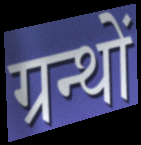
ग्रन्थों